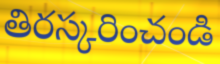
తిరస్కరించండి